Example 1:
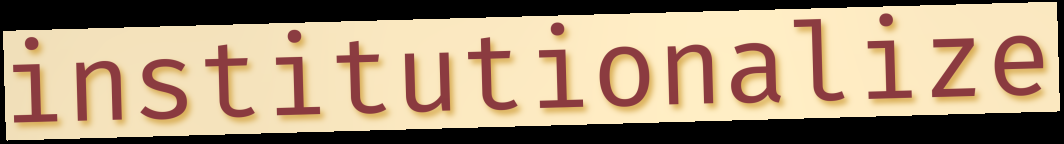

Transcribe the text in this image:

institutionalize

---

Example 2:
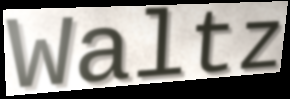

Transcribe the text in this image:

Waltz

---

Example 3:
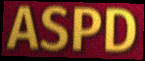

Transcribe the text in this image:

ASPD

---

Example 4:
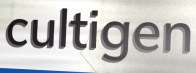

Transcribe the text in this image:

cultigen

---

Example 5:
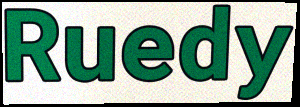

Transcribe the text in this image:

Ruedy